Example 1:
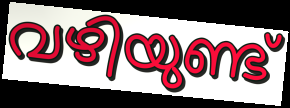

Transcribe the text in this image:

വഴിയുണ്ട്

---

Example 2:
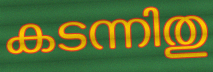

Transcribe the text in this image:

കടന്നിതു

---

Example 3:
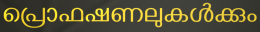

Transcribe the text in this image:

പ്രൊഫഷണലുകൾക്കും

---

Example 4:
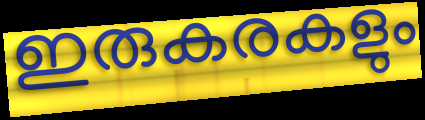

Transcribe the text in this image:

ഇരുകരകളും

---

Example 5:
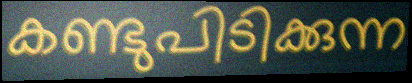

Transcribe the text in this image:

കണ്ടുപിടിക്കുന്ന